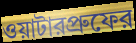
ওয়াটারপ্রুফের